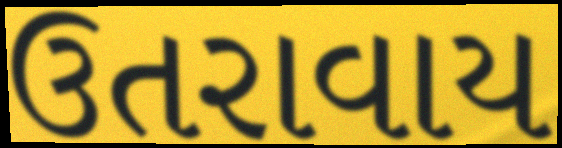
ઉતરાવાય